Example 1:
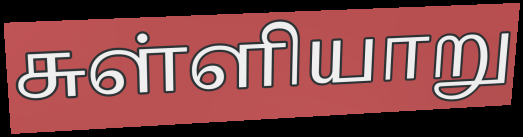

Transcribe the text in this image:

சுள்ளியாறு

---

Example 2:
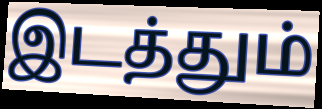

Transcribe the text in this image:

இடத்தும்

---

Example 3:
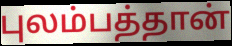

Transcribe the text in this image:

புலம்பத்தான்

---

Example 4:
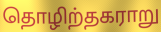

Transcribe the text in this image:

தொழிற்தகராறு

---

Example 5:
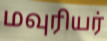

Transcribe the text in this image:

மவுரியர்